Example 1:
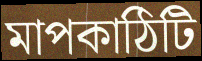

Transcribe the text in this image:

মাপকাঠিটি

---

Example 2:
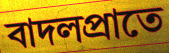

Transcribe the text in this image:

বাদলপ্রাতে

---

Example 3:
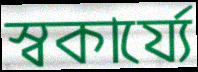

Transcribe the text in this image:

স্বকার্য্যে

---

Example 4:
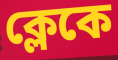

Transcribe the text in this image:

ক্লেকে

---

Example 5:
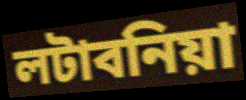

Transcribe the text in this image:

লটাবনিয়া